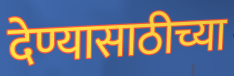
देण्यासाठीच्या